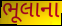
ભૂલાના